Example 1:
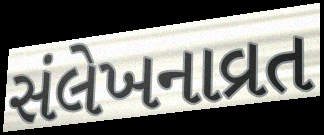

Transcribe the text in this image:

સંલેખનાવ્રત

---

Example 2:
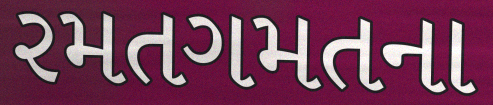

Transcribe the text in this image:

રમતગમતના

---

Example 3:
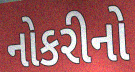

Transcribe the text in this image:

નોકરીનો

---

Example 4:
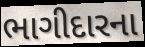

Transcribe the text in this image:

ભાગીદારના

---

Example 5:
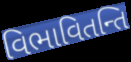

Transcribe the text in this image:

વિભાવિતન્તિ